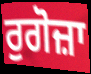
ਰੁਗੋਜ਼ਾ